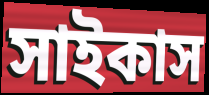
সাইকাস